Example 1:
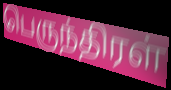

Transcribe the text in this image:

பெருந்திரள்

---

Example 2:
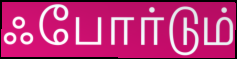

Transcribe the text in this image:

ஃபோர்டும்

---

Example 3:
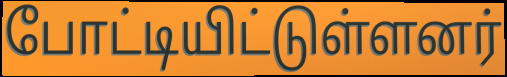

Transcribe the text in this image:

போட்டியிட்டுள்ளனர்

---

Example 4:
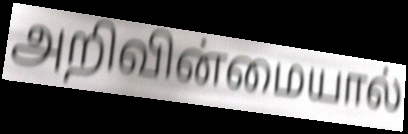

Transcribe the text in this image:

அறிவின்மையால்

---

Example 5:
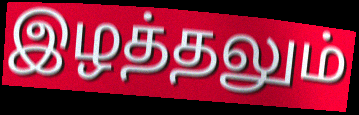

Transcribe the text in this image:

இழத்தலும்